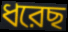
ধরেছ